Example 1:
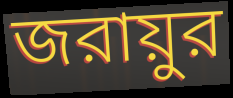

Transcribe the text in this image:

জরায়ুর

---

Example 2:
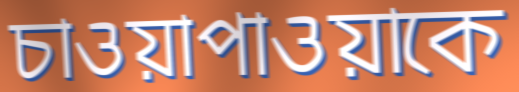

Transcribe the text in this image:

চাওয়াপাওয়াকে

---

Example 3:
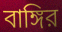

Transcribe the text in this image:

বাঙ্গির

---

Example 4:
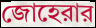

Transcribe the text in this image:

জোহেরার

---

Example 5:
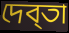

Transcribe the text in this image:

দেব্‌তা